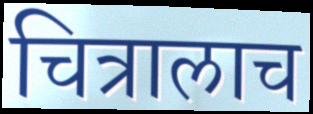
चित्रालाच